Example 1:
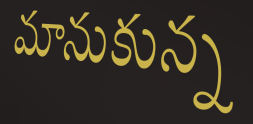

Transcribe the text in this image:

మానుకున్న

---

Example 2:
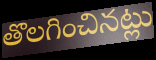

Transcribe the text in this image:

తొలగించినట్లు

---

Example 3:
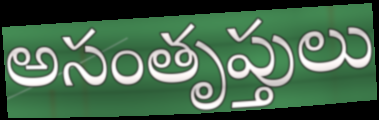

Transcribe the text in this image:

అసంతృప్తులు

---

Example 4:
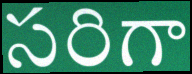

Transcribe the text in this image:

సరిగా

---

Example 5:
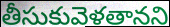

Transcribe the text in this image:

తీసుకువెళతానని